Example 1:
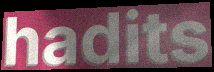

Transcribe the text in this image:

hadits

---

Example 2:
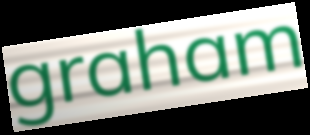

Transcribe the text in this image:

graham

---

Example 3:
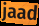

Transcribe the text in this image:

jaad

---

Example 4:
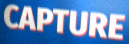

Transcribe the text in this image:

CAPTURE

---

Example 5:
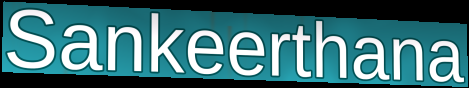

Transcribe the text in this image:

Sankeerthana